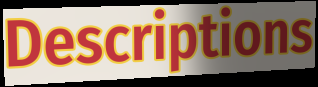
Descriptions